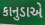
કાનુડાએ